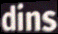
dins